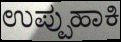
ಉಪ್ಪುಹಾಕಿ